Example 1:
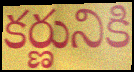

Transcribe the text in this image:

కర్ణునికి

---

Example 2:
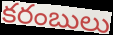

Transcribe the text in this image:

కరంబులు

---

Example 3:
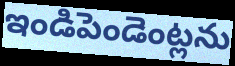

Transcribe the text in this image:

ఇండిపెండెంట్లను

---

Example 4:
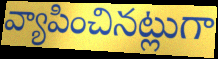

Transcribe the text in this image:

వ్యాపించినట్లుగా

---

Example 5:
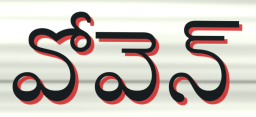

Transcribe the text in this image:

వోవెన్